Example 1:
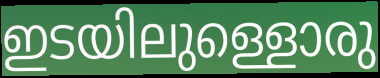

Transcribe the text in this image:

ഇടയിലുള്ളൊരു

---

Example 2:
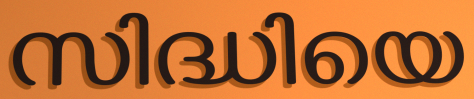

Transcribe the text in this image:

സിദ്ധിയെ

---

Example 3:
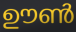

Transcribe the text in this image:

ഊൺ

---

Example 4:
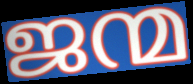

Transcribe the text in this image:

ജന്മ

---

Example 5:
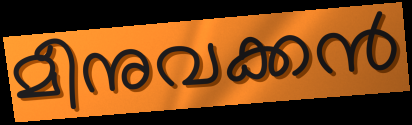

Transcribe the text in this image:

മീനുവക്കൻ